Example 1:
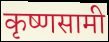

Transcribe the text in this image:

कृष्णसामी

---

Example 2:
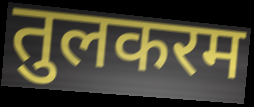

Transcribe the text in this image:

तुलकरम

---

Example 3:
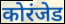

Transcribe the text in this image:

कोरंजेड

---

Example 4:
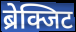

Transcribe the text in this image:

ब्रेक्जिट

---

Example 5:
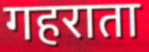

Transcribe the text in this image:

गहराता